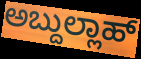
ಅಬ್ದುಲ್ಲಾಹ್